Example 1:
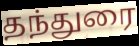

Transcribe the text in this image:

தந்துரை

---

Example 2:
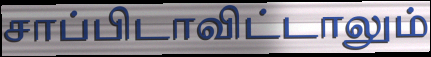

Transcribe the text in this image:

சாப்பிடாவிட்டாலும்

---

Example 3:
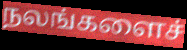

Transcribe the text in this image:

நலங்களைச்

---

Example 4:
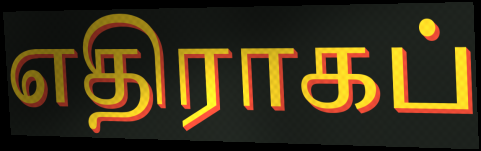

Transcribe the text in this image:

எதிராகப்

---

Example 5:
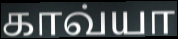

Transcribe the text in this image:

காவ்யா